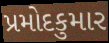
પ્રમોદકુમાર